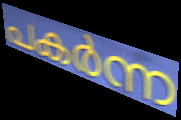
പകർന്ന